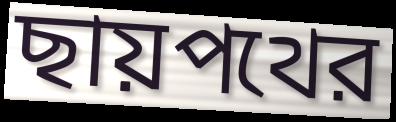
ছায়পথের